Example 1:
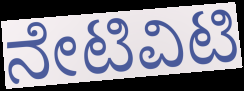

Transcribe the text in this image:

ನೇಟಿವಿಟಿ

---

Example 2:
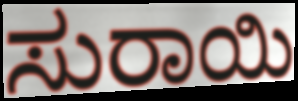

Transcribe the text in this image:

ಸುರಾಯಿ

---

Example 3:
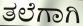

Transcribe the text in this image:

ತಲೆಗಾಗಿ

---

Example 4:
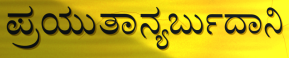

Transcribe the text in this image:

ಪ್ರಯುತಾನ್ಯರ್ಬುದಾನಿ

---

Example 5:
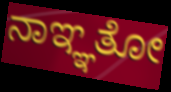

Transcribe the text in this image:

ನಾಞ್ಞತೋ